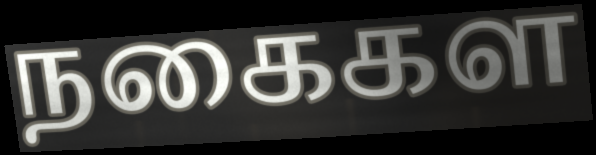
நகைகள